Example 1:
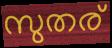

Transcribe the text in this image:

സുതര്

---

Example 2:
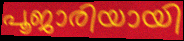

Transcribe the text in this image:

പൂജാരിയായി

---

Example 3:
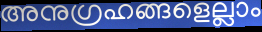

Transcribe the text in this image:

അനുഗ്രഹങ്ങളെല്ലാം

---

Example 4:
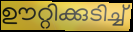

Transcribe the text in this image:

ഊറ്റിക്കുടിച്ച്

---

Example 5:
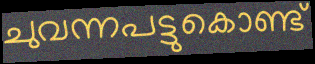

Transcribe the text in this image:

ചുവന്നപട്ടുകൊണ്ട്